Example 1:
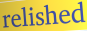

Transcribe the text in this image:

relished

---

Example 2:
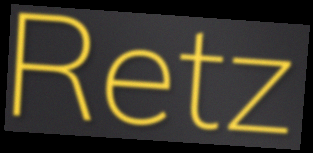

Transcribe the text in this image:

Retz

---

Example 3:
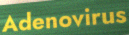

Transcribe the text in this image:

Adenovirus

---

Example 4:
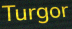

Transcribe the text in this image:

Turgor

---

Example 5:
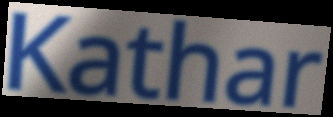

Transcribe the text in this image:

Kathar